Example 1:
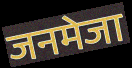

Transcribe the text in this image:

जनमेजा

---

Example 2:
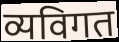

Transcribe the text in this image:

व्यविगत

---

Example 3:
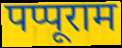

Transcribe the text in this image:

पप्पूराम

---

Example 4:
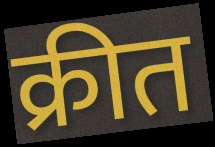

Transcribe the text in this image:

क्रीत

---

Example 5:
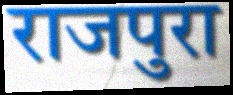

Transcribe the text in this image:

राजपुरा